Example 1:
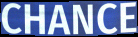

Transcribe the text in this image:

CHANCE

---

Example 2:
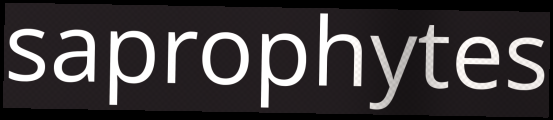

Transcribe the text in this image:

saprophytes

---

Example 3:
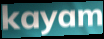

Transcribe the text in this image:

kayam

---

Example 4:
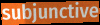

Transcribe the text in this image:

subjunctive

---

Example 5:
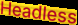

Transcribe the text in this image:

Headless